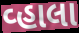
વ્હાલા